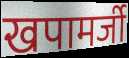
खपामर्जी